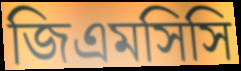
জিএমসিসি